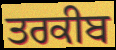
ਤਰਕੀਬ